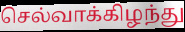
செல்வாக்கிழந்து